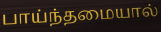
பாய்ந்தமையால்